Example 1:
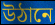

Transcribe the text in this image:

উঠানে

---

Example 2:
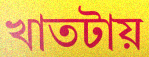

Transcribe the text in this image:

খাতটায়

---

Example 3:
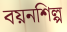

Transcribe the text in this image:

বয়নশিল্প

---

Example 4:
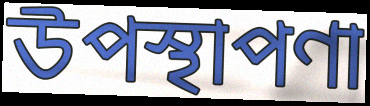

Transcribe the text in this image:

উপস্থাপণা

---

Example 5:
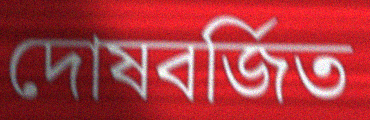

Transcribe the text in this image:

দোষবর্জিত